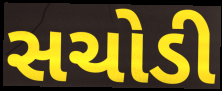
સચોડી